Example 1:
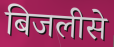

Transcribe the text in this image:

बिजलीसे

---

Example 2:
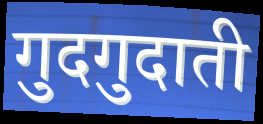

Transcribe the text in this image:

गुदगुदाती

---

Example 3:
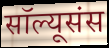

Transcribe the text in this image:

सॉल्यूसंस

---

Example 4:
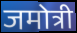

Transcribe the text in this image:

जमोत्री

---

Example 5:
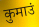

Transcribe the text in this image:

कुमाउं